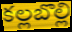
కల్లబొల్లి